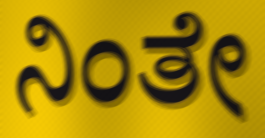
ನಿಂತೇ